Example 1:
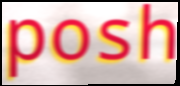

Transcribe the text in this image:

posh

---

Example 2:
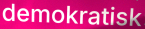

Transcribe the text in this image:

demokratisk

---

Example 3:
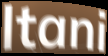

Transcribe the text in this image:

Itani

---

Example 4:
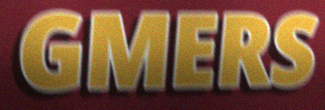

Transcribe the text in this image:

GMERS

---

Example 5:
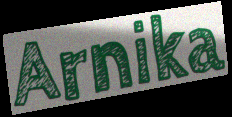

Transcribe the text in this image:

Arnika